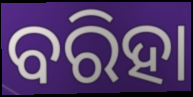
ବରିହା